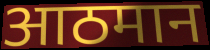
आठमान